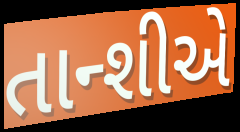
તાન્શીએ